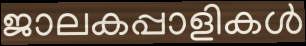
ജാലകപ്പാളികൾ